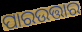
ପାରଉତ୍ତାର